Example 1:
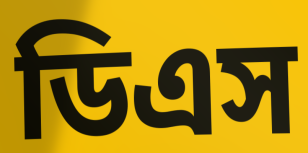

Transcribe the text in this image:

ডিএস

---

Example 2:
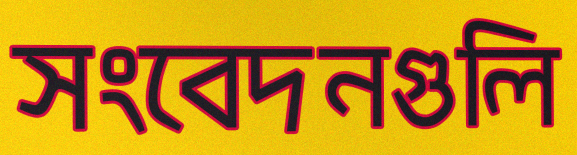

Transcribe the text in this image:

সংবেদনগুলি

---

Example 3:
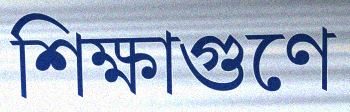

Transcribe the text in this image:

শিক্ষাগুণে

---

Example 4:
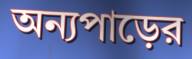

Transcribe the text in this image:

অন্যপাড়ের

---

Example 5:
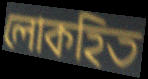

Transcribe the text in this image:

লোকহিত